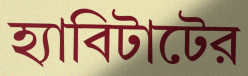
হ্যাবিটাটের